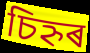
চিহ্নৰ